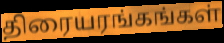
திரையரங்கங்கள்